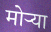
मोर्‍या